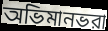
অভিমানভরা